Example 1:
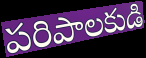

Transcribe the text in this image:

పరిపాలకుడి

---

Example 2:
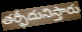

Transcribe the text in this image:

తర్ఫీదునిస్తారు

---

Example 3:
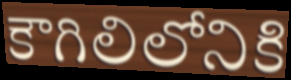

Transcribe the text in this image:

కౌగిలిలోనికి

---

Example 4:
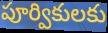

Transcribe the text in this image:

పూర్వికులకు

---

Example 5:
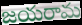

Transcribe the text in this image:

జయరామ